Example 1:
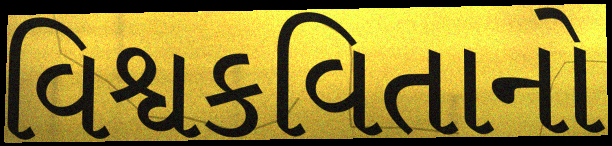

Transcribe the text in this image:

વિશ્વકવિતાનો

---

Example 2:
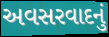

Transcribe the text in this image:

અવસરવાદનું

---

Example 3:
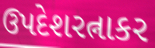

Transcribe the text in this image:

ઉપદેશરત્નાકર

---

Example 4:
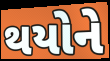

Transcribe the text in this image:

થયોને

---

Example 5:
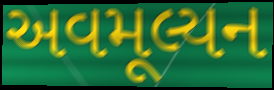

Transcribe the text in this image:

અવમૂલ્યન